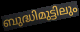
ബുദ്ധിമുട്ടിലും